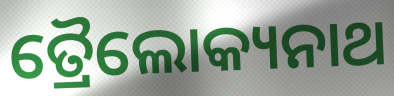
ତ୍ରୈଲୋକ୍ୟନାଥ